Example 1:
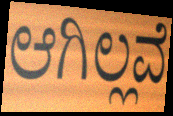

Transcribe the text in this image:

ಆಗಿಲ್ಲವೆ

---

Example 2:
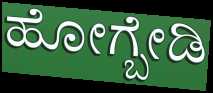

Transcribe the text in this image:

ಹೋಗ್ಬೇಡಿ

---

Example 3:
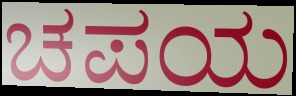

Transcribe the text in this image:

ಚಪಯ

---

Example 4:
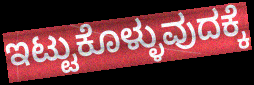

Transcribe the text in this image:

ಇಟ್ಟುಕೊಳ್ಳುವುದಕ್ಕೆ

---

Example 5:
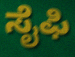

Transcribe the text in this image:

ಸೈಫಿ